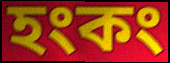
হংকং